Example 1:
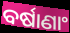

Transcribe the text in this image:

ବର୍ଷାଣାଂ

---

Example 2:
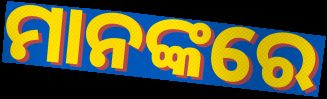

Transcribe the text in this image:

ମାନଙ୍କରେ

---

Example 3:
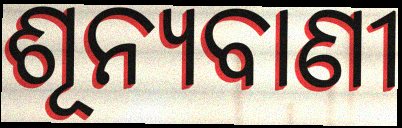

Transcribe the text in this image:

ଶୂନ୍ୟବାଣୀ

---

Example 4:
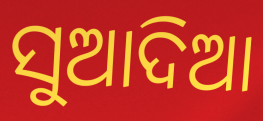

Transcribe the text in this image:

ସୁଆଦିଆ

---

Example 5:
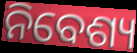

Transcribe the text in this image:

ନିବେଶ୍ୟ